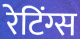
रेटिंग्स